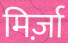
मिर्ज़ा